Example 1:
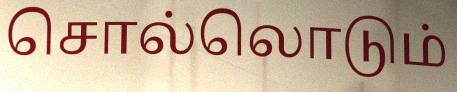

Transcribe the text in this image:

சொல்லொடும்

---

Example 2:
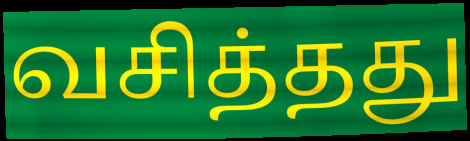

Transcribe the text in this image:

வசித்தது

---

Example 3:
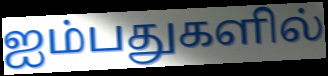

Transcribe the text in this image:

ஐம்பதுகளில்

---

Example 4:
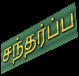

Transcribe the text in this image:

சந்தர்ப்ப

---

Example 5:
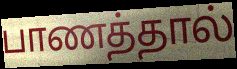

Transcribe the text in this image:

பாணத்தால்